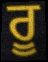
ਰੂ